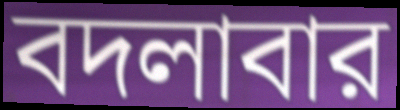
বদলাবার